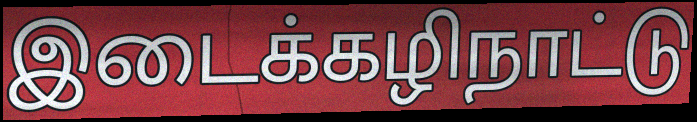
இடைக்கழிநாட்டு